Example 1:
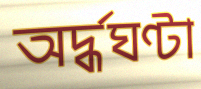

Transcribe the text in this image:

অর্দ্ধঘণ্টা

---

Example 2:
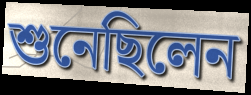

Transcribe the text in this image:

শুনেছিলেন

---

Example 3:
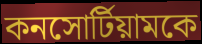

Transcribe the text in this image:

কনসোর্টিয়ামকে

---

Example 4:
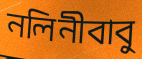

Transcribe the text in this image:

নলিনীবাবু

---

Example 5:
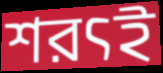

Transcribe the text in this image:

শরৎই